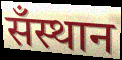
सँस्थान